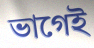
ভাগেই